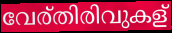
വേര്തിരിവുകള്